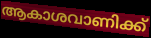
ആകാശവാണിക്ക്